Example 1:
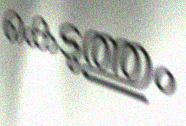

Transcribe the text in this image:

കെടുത്തും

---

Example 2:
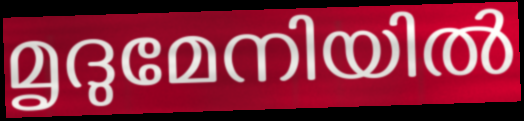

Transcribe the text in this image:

മൃദുമേനിയിൽ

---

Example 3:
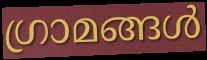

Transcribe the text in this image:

ഗ്രാമങ്ങൾ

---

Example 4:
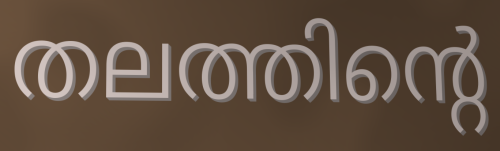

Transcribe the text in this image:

തലത്തിന്റെ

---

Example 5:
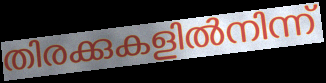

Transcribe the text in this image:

തിരക്കുകളിൽനിന്ന്